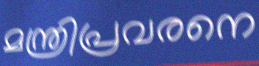
മന്ത്രിപ്രവരനെ